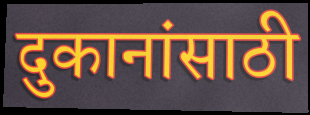
दुकानांसाठी